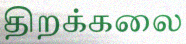
திறக்கலை